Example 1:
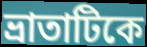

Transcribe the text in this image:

ভ্রাতাটিকে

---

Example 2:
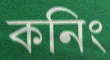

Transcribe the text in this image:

কনিং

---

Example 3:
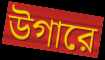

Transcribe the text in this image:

উগারে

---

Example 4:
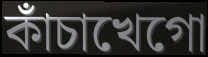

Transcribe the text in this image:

কাঁচাখেগো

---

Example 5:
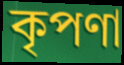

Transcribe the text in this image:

কৃপণা